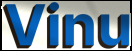
Vinu